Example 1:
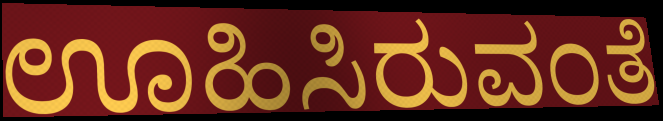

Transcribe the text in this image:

ಊಹಿಸಿರುವಂತೆ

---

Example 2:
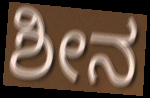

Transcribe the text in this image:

ಶೀನ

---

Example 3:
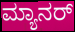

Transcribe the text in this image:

ಮ್ಯಾನರ್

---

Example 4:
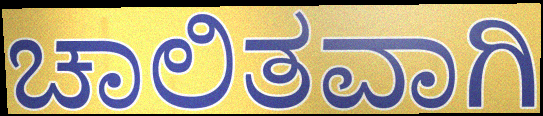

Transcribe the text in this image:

ಚಾಲಿತವಾಗಿ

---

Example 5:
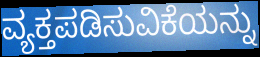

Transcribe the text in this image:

ವ್ಯಕ್ತಪಡಿಸುವಿಕೆಯನ್ನು